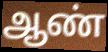
ஆண்